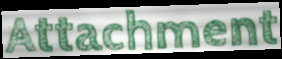
Attachment